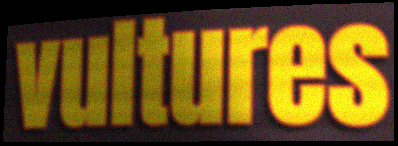
vultures